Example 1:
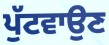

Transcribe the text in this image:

ਪੁੱਟਵਾਉਣ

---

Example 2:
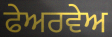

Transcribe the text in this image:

ਫੇਅਰਵੇਅ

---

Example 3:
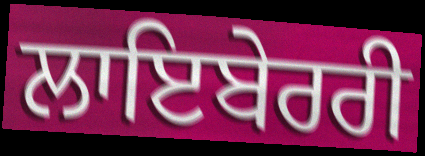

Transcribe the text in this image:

ਲਾਇਬੇਰਰੀ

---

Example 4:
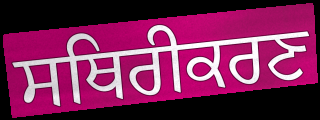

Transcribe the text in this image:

ਸਥਿਰੀਕਰਣ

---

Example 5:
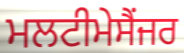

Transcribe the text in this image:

ਮਲਟੀਮੇਸੈਂਜਰ